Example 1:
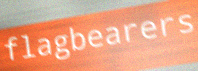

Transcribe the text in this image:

flagbearers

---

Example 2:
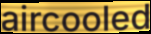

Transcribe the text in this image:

aircooled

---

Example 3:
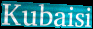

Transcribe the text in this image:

Kubaisi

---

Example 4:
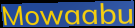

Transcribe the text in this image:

Mowaabu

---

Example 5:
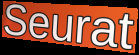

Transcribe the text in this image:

Seurat